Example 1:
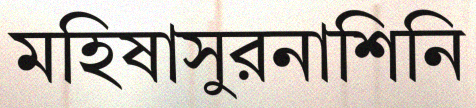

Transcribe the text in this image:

মহিষাসুরনাশিনি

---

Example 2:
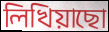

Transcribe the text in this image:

লিখিয়াছো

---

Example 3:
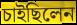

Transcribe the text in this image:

চাইছিলেন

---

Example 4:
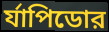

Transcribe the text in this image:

র্যাপিডোর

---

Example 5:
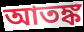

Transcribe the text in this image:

আতঙ্ক